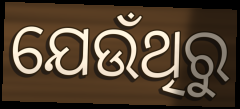
ଯେଉଁଥିରୁ